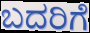
ಬದರಿಗೆ